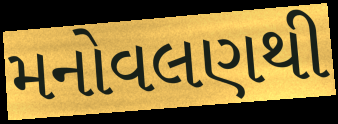
મનોવલણથી